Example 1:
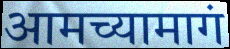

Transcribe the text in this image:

आमच्यामागं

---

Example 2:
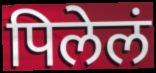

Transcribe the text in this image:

पिलेलं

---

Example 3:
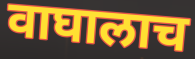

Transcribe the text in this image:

वाघालाच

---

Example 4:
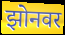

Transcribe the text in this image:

झोनवर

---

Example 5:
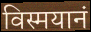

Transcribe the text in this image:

विस्मयानं